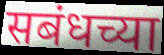
सबंधच्या